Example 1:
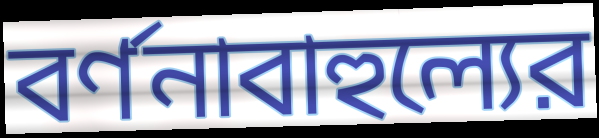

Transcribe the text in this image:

বর্ণনাবাহুল্যের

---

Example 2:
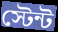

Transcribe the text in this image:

স্টেন্ট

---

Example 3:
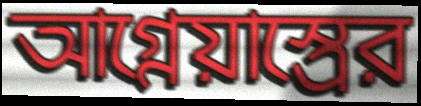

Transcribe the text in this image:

আগ্নেয়াস্ত্রের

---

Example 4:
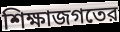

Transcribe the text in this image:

শিক্ষাজগতের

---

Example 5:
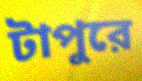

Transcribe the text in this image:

টাপুরে